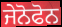
ਜੇਨੋਫੋਨ